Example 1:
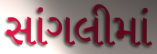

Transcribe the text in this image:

સાંગલીમાં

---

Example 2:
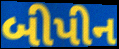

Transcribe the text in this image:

બીપીન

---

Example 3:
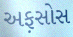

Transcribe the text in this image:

અફ઼સોસ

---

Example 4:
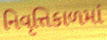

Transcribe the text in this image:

નિવૃત્તિકાળમાં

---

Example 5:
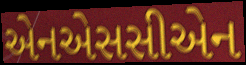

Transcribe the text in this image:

એનએસસીએન